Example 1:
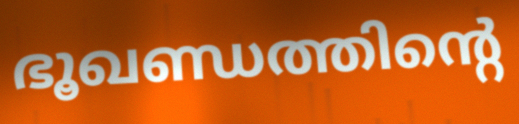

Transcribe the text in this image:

ഭൂഖണ്ഡത്തിന്റെ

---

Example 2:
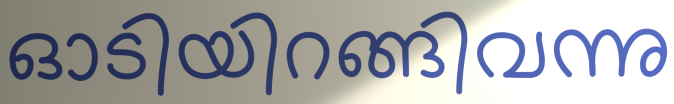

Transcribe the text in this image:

ഓടിയിറങ്ങിവന്നു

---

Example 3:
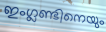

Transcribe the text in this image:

ഇംഗ്ലണ്ടിനെയും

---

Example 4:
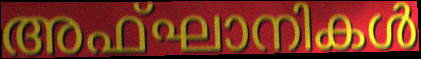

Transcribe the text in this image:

അഫ്ഘാനികൾ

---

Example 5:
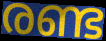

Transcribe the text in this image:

രണ്ട